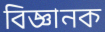
বিজ্ঞানক